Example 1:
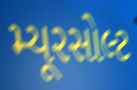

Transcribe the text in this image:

મ્યૂરસોલ્ટ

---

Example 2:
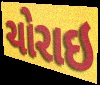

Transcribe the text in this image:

ચોરાઇ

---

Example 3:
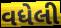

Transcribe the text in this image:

વધેલી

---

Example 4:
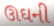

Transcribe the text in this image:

ઊઘની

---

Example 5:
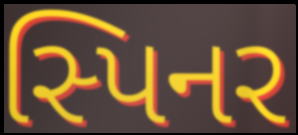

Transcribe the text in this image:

સ્પિનર